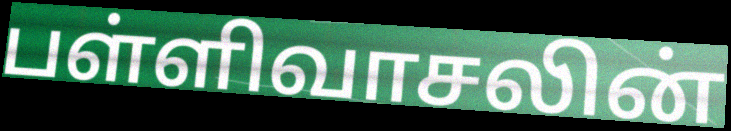
பள்ளிவாசலின்